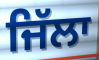
ਜਿੱਲਾ